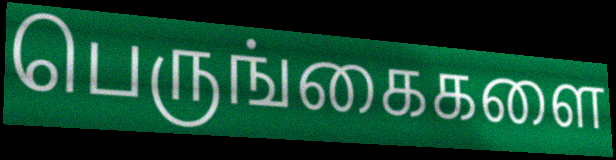
பெருங்கைகளை